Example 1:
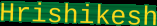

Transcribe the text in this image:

Hrishikesh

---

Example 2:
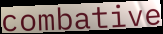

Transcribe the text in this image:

combative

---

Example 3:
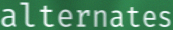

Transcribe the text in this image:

alternates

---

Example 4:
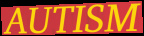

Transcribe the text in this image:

AUTISM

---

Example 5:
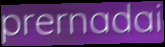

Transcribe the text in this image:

prernadai